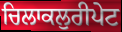
ਚਿਲਾਕਲੁਰੀਪੇਟ